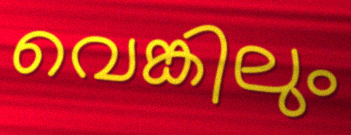
വെങ്കിലും